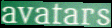
avatars